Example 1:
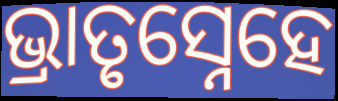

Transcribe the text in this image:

ଭ୍ରାତୃସ୍ନେହେ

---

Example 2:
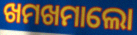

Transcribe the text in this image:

ଖମଖମାଲୋ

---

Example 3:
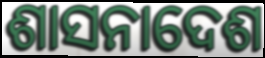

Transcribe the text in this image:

ଶାସନାଦେଶ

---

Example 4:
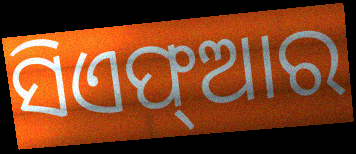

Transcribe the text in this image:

ସିଏଫ୍ଆର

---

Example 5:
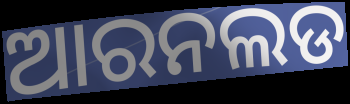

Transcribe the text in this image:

ଆରନଲଡ